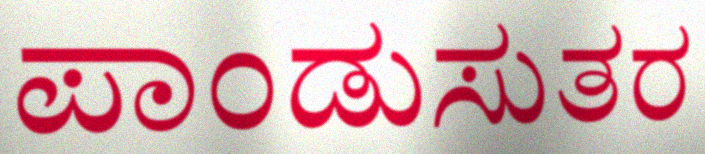
ಪಾಂಡುಸುತರ